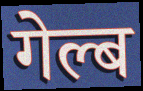
गेल्ब